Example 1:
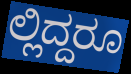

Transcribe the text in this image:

ಲ್ಲಿದ್ದರೂ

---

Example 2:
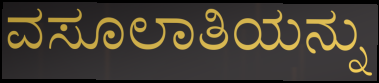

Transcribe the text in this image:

ವಸೂಲಾತಿಯನ್ನು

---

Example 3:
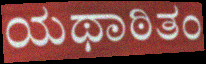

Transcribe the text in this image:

ಯಥಾಠಿತಂ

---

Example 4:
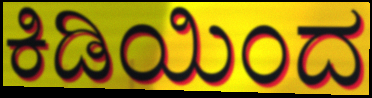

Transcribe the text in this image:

ಕಿಡಿಯಿಂದ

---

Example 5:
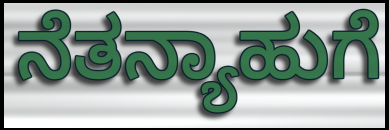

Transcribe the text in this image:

ನೆತನ್ಯಾಹುಗೆ